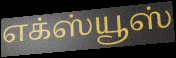
எக்ஸ்யூஸ்